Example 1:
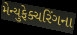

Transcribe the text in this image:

મેન્યુફેક્ચરિંગના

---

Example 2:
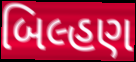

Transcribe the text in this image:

બિલ્હણ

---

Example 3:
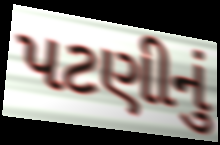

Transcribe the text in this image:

પટણીનું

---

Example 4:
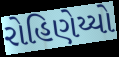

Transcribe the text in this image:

રોહિણેય્યો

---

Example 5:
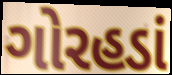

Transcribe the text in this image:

ગોરહડાં